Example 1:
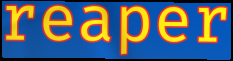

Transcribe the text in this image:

reaper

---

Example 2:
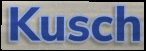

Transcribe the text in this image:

Kusch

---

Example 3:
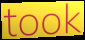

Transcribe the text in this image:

took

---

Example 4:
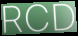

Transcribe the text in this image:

RCD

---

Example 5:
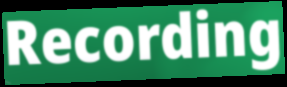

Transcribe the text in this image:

Recording